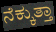
ನೆಕ್ಕುತ್ತಾ